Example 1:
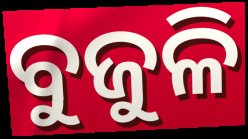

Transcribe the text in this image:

ବୁଜୁଳି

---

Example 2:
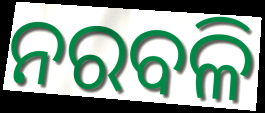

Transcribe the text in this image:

ନରବଳି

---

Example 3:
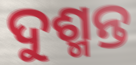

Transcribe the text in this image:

ଦୁଶ୍ମନ୍ତ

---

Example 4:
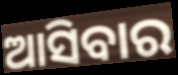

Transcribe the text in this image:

ଆସିବାର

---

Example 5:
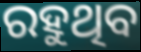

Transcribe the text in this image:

ରହୁଥିବ